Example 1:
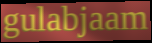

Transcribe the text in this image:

gulabjaam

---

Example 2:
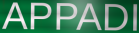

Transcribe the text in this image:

APPADI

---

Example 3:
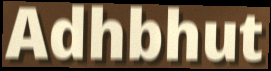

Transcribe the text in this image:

Adhbhut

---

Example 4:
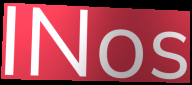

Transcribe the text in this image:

INos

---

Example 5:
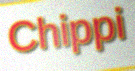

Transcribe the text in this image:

Chippi